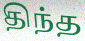
திந்த